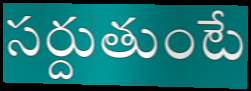
సర్దుతుంటే